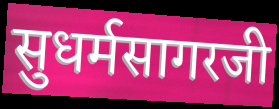
सुधर्मसागरजी